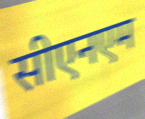
सीएनएम